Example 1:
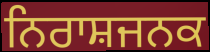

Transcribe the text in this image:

ਨਿਰਾਸ਼ਜਨਕ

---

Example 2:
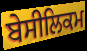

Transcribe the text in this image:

ਬੇਸੀਲਿਕਮ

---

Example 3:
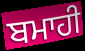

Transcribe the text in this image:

ਬਮਾਹੀ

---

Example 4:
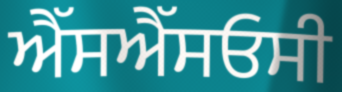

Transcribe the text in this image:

ਐੱਸਐੱਸਓਸੀ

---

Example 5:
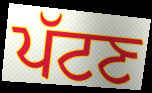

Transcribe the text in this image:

ਪੱਟਣ